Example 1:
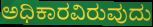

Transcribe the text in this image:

ಅಧಿಕಾರವಿರುವುದು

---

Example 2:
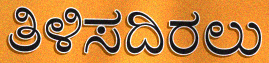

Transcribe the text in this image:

ತಿಳಿಸದಿರಲು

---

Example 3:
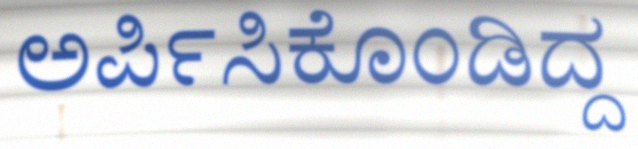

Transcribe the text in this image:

ಅರ್ಪಿಸಿಕೊಂಡಿದ್ದ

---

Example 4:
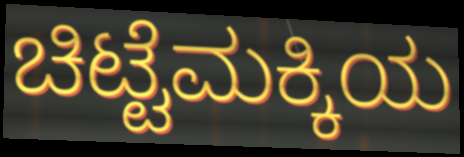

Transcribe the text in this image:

ಚಿಟ್ಟೆಮಕ್ಕಿಯ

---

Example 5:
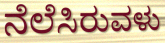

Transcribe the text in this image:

ನೆಲೆಸಿರುವಳು